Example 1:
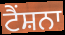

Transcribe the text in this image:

ਟੈਂਸ਼ਨਾ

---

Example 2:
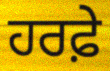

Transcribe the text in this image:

ਹਰਫ਼ੇ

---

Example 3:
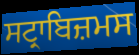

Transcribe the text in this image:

ਸਟ੍ਰਾਬਿਜ਼ਮਸ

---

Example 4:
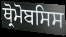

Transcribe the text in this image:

ਥ੍ਰੋਮੋਬਸਿਸ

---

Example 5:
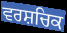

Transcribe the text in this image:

ਵਰਸ਼ਚਿਕ